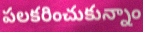
పలకరించుకున్నాం